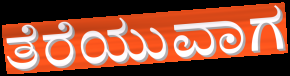
ತೆರೆಯುವಾಗ